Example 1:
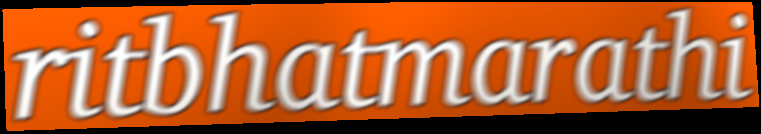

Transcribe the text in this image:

ritbhatmarathi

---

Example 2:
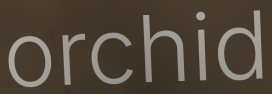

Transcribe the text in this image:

orchid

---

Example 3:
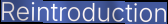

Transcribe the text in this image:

Reintroduction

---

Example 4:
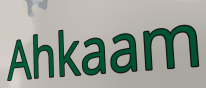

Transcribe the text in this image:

Ahkaam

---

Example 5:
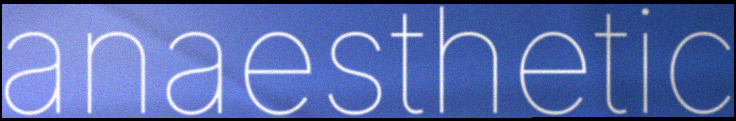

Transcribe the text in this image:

anaesthetic